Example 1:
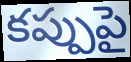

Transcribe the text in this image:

కప్పుపై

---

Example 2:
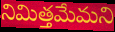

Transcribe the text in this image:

నిమిత్తమేమని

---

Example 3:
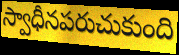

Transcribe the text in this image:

స్వాధీనపరుచుకుంది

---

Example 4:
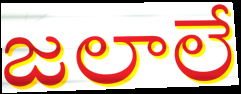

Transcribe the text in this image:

జలాలే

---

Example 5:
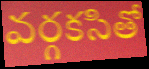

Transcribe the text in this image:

వర్గకసితో